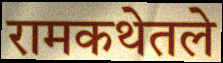
रामकथेतले